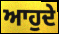
ਆਹੁਦੇ